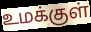
உமக்குள்